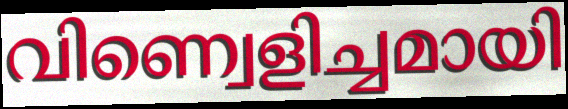
വിണ്വെളിച്ചമായി